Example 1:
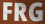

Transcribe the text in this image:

FRG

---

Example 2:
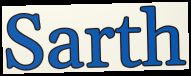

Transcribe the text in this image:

Sarth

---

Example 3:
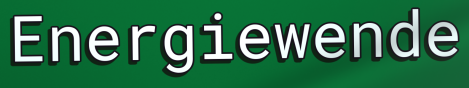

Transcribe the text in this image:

Energiewende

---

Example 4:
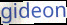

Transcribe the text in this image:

gideon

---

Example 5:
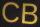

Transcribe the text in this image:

CB